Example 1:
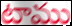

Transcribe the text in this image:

టాము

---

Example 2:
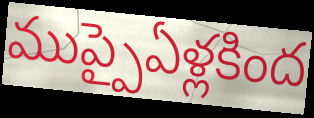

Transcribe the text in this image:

ముప్పైఏళ్లకింద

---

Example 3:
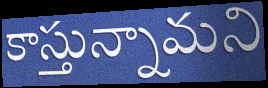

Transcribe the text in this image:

కాస్తున్నామని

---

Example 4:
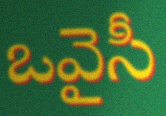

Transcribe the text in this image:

ఒవైసీ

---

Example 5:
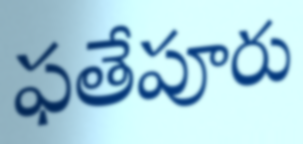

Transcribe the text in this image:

ఫతేపూరు